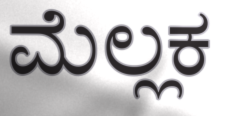
ಮೆಲ್ಲಕ